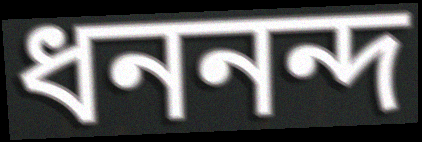
ধননন্দ